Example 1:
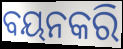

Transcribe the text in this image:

ବୟନକରି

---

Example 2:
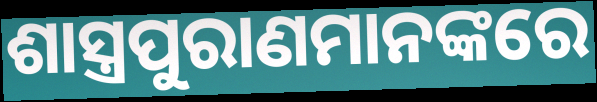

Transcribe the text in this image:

ଶାସ୍ତ୍ରପୁରାଣମାନଙ୍କରେ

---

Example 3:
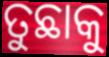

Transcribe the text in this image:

ତୁଛାକୁ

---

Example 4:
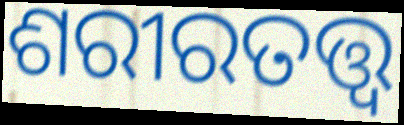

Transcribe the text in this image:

ଶରୀରତତ୍ତ୍ୱ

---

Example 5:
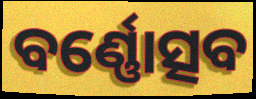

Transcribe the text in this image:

ବର୍ଣ୍ଣୋତ୍ସବ